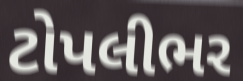
ટોપલીભર